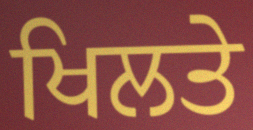
ਖਿਲਤੇ